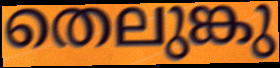
തെലുങ്കു